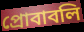
প্রোবাবলি